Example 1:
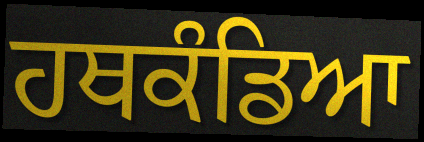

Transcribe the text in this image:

ਹਥਕੰਡਿਆ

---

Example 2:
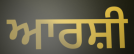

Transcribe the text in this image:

ਆਰਸ਼ੀ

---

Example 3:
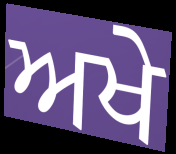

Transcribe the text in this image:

ਅਖੇ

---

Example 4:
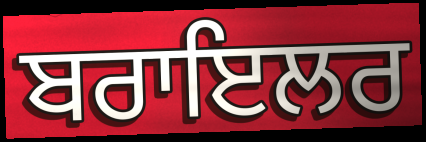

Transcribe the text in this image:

ਬਰਾਇਲਰ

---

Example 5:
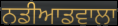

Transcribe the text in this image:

ਨਡੀਆਡਵਾਲਾ